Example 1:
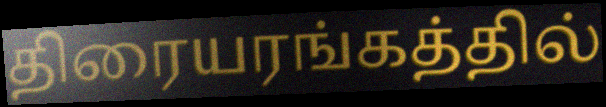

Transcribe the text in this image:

திரையரங்கத்தில்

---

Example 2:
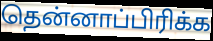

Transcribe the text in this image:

தென்னாப்பிரிக்க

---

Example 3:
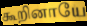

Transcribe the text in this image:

கூறினாயே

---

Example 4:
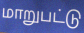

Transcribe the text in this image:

மாறுபட்டு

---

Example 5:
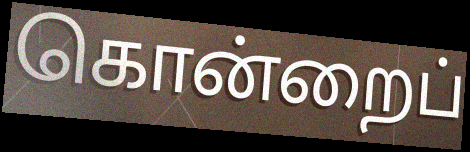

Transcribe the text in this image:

கொன்றைப்